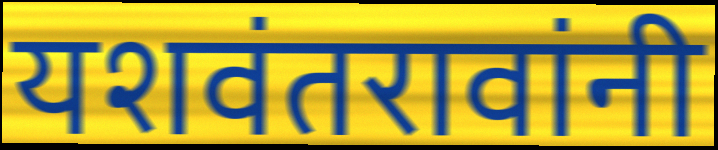
यशवंतरावांनी